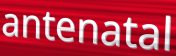
antenatal